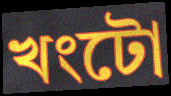
খংটো